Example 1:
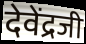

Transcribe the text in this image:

देवेंद्रजी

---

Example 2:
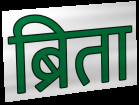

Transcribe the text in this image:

ब्रिता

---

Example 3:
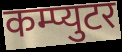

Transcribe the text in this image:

कम्प्युटर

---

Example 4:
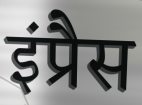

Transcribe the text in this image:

इंप्रैस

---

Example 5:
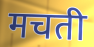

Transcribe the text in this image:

मचती